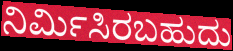
ನಿರ್ಮಿಸಿರಬಹುದು